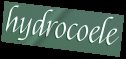
hydrocoele